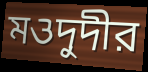
মওদুদীর